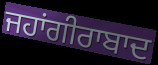
ਜਹਾਂਗੀਰਾਬਾਦ